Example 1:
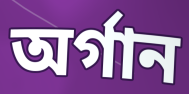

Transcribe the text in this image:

অর্গান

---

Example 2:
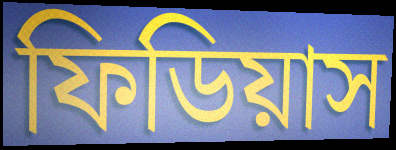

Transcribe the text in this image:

ফিডিয়াস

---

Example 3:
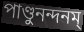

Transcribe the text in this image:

পাণ্ডুনন্দনম্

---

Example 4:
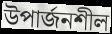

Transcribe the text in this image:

উপার্জনশীল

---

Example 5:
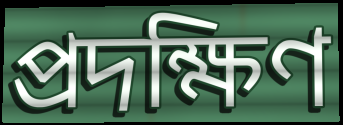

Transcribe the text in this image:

প্রদক্ষিণ